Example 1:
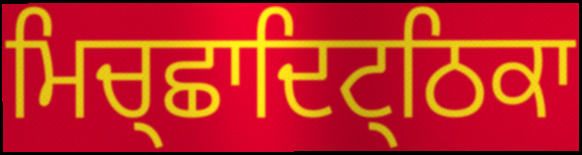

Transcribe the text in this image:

ਮਿਚ੍ਛਾਦਿਟ੍ਠਿਕਾ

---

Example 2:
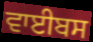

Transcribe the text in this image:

ਵਾਈਬਸ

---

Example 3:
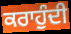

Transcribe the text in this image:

ਕਰਾਹੁੰਦੀ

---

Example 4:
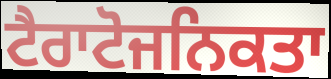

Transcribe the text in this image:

ਟੈਰਾਟੋਜਨਿਕਤਾ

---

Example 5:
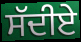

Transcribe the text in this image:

ਸੱਦੀਏ